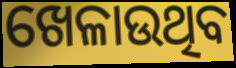
ଖେଳାଉଥିବ